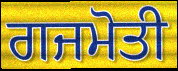
ਗਜਮੋਤੀ